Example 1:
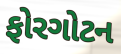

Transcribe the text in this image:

ફોરગોટન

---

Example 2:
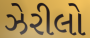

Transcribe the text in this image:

ઝેરીલો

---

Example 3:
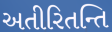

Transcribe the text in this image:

અતીરિતન્તિ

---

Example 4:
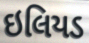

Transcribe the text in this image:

ઇલિયડ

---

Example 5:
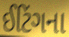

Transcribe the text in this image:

ઈટિંગના